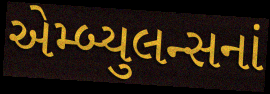
એમ્બ્યુલન્સનાં